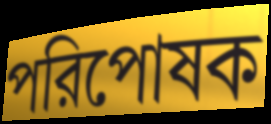
পরিপোষক